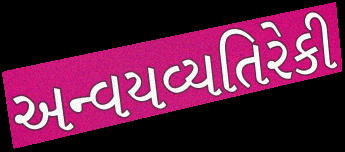
અન્વયવ્યતિરેકી